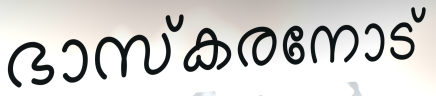
ഭാസ്കരനോട്